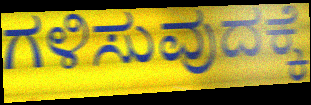
ಗಳಿಸುವುದಕ್ಕೆ